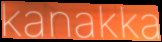
kanakka